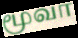
மூவா